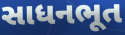
સાધનભૂત